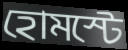
হোমস্টে